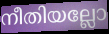
നീതിയല്ലോ